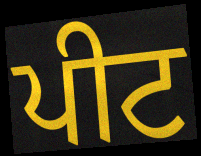
ਪੀਟ